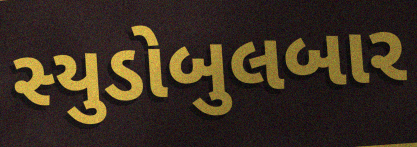
સ્યુડોબુલબાર